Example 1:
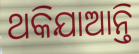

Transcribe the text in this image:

ଥକିଯାଆନ୍ତି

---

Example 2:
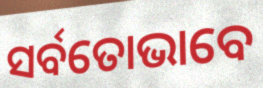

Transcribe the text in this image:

ସର୍ବତୋଭାବେ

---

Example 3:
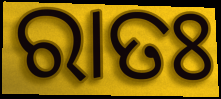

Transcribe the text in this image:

ରାତଃ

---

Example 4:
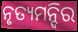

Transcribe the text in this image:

ନୃତ୍ୟମନ୍ଦିର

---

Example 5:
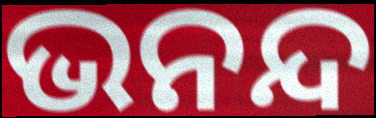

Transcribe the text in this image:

ଭନନ୍ଦ